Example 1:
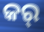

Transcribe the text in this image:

କର୍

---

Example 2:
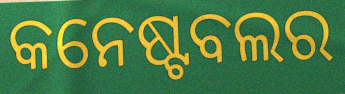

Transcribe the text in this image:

କନେଷ୍ଟବଲର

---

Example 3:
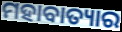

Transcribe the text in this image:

ମହାବାତ୍ୟାର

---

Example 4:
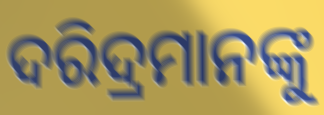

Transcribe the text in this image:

ଦରିଦ୍ରମାନଙ୍କୁ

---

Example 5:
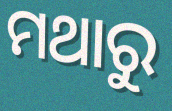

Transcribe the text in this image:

ମଥାରୁ